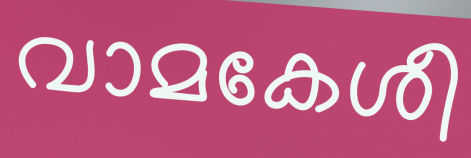
വാമകേശീ